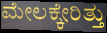
ಮೇಲಕ್ಕೇರಿತ್ತು